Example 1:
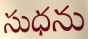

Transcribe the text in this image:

సుధను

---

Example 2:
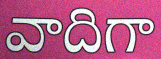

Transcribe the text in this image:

వాదిగా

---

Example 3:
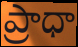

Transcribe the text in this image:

ప్రాధా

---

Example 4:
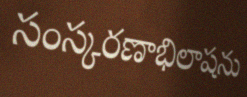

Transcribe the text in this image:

సంస్కరణాభిలాషను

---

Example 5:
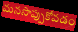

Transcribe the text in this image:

మనసొప్పుకోవడం